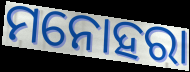
ମନୋହରା